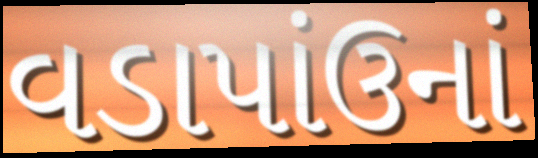
વડાપાંઉનાં